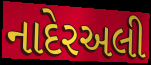
નાદેરઅલી